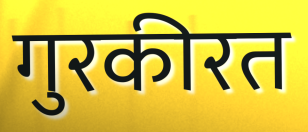
गुरकीरत